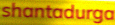
shantadurga